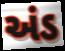
અંડ